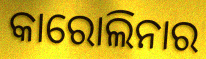
କାରୋଲିନାର